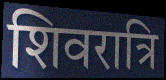
शिवरात्रि